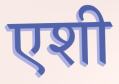
एशी